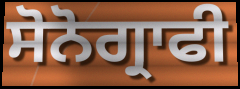
ਸੋਨੋਗ੍ਰਾਫੀ